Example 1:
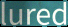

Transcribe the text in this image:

lured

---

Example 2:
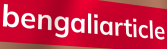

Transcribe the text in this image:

bengaliarticle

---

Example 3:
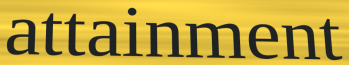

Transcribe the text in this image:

attainment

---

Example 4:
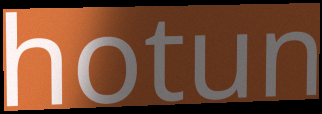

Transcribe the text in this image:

hotun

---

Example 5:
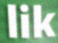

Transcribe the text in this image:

lik